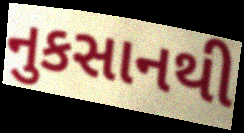
નુકસાનથી